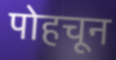
पोहचून